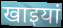
खाइयां